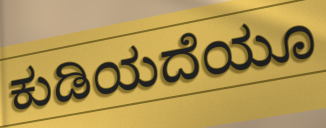
ಕುಡಿಯದೆಯೂ